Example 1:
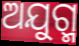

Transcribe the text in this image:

ଅଯୁଗ୍ମ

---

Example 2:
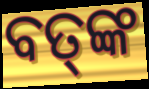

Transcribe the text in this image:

ବତ୍‍ଙ୍କ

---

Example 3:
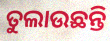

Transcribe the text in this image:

ତୁଲାଉଛନ୍ତି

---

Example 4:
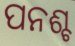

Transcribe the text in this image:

ପନଶ୍ଚ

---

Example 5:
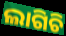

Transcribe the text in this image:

ଲାଗିଚି